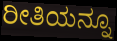
ರೀತಿಯನ್ನೂ